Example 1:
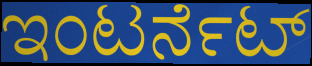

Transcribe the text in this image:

ಇಂಟರ್ನೆಟ್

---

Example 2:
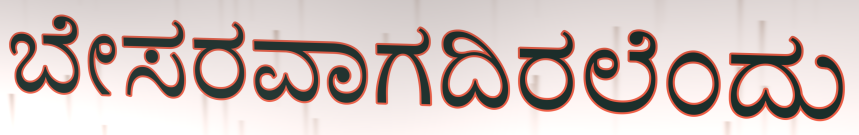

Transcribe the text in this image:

ಬೇಸರವಾಗದಿರಲೆಂದು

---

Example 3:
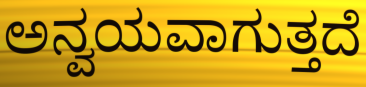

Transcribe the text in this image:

ಅನ್ವಯವಾಗುತ್ತದೆ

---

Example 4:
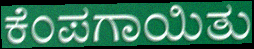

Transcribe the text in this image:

ಕೆಂಪಗಾಯಿತು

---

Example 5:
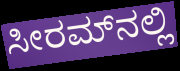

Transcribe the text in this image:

ಸೀರಮ್‌ನಲ್ಲಿ